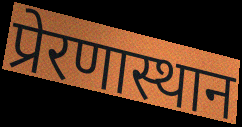
प्रेरणास्थान